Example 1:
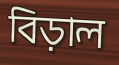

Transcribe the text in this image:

বিড়াল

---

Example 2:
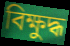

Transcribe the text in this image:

বিক্ষুদ্ধ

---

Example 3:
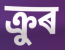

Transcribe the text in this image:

ক্ৰুৰ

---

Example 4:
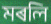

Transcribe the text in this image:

মৰলি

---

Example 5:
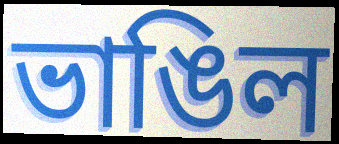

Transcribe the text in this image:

ভাঙিল